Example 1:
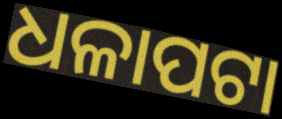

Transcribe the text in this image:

ଧଳାପଟା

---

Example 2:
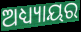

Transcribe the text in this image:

ଅଧ୍ୟ୍ୟାୟର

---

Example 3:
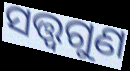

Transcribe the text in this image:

ସତ୍ତ୍ୱଗୁଣ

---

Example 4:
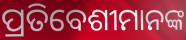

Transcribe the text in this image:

ପ୍ରତିବେଶୀମାନଙ୍କ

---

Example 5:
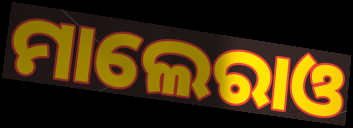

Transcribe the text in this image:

ମାଲେରାଓ